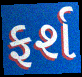
ફર્શ